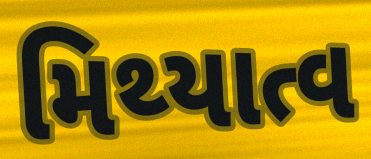
મિથ્યાત્વ